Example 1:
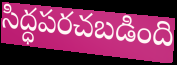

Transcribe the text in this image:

సిద్ధపరచబడింది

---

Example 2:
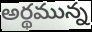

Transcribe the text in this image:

అర్థమున్న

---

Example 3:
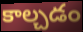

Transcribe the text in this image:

కాల్చడం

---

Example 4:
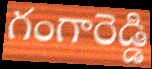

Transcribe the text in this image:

గంగారెడ్డి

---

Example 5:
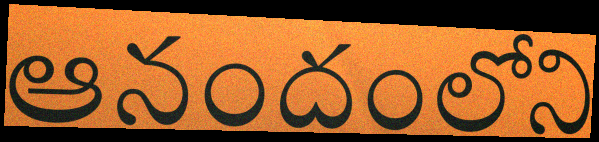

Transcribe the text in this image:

ఆనందంలోని